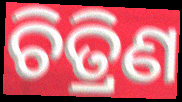
ଚିତ୍ରିଣ